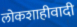
लोकशाहीवादी